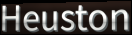
Heuston